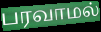
பரவாமல்